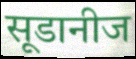
सूडानीज